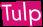
Tulp